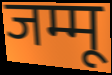
जम्‍मू